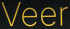
Veer